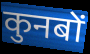
कुनबों